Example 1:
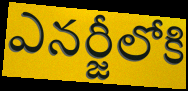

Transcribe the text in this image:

ఎనర్జీలోకి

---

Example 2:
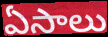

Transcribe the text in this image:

ఏసాలు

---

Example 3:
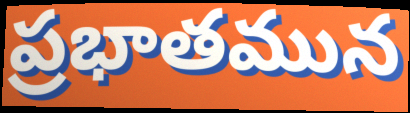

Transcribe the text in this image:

ప్రభాతమున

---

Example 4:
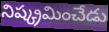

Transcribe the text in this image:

నిష్క్రమించేడు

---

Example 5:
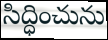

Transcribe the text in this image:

సిద్ధించును